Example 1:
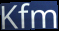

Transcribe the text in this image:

Kfm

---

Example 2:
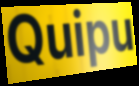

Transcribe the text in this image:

Quipu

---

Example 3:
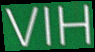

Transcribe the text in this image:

VIH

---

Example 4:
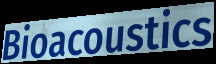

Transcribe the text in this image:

Bioacoustics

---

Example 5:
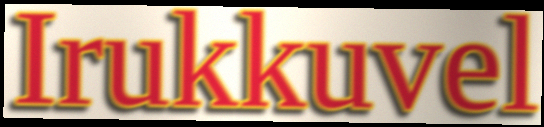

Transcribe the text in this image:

Irukkuvel